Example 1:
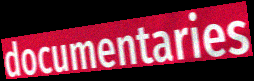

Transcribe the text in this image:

documentaries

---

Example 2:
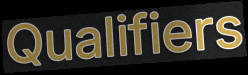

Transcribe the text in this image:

Qualifiers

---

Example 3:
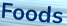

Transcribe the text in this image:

Foods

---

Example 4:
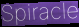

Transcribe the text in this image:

Spiracle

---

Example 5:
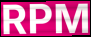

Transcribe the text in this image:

RPM